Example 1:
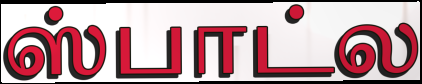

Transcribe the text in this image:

ஸ்பாட்ல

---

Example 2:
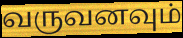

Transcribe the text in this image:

வருவனவும்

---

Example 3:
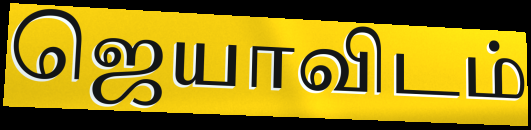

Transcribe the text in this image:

ஜெயாவிடம்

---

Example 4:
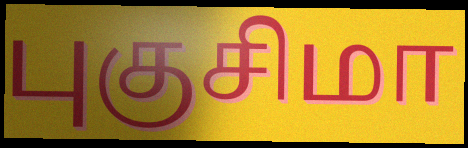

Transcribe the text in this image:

புகுசிமா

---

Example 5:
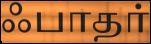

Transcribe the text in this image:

ஃபாதர்